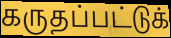
கருதப்பட்டுக்